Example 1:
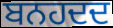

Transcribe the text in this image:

ਬਨਹਦਦ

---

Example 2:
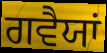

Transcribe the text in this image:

ਗਵੈਯਾਂ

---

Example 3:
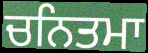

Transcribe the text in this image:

ਚਨਿਤਮਾ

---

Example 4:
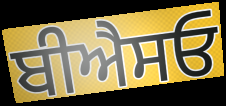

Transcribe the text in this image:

ਬੀਐਸਓ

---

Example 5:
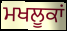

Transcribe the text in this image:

ਮਖਲੂਕਾਂ